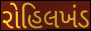
રોહિલખંડ